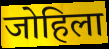
जोहिला